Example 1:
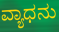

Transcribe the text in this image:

ವ್ಯಾಧನು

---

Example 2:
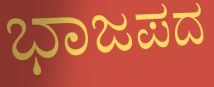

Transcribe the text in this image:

ಭಾಜಪದ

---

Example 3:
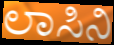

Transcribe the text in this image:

ಲಾಸಿನಿ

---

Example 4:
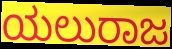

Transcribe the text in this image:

ಯಲುರಾಜ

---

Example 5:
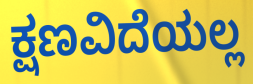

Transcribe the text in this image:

ಕ್ಷಣವಿದೆಯಲ್ಲ